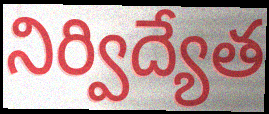
నిర్విద్యేత